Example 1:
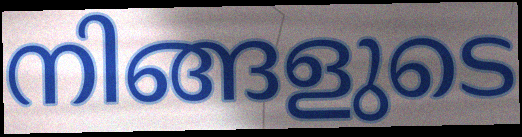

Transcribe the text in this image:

നിങ്ങളുടെ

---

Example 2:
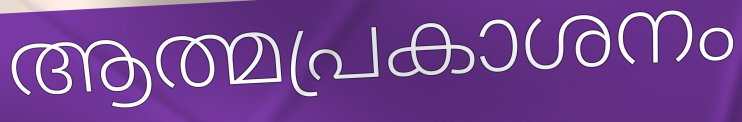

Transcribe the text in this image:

ആത്മപ്രകാശനം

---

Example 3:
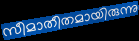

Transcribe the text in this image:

സീമാതീതമായിരുന്നു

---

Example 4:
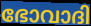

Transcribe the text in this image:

ഭോവാദി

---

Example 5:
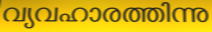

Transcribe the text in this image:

വ്യവഹാരത്തിന്നു